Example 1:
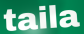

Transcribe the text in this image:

taila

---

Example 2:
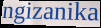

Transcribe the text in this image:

ngizanika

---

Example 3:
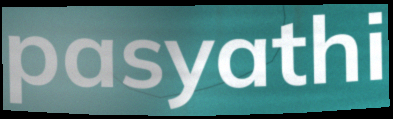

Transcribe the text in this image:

pasyathi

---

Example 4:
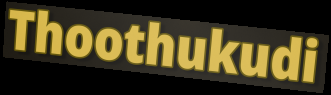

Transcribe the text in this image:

Thoothukudi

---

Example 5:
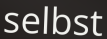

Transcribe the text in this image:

selbst